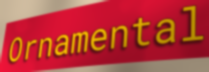
Ornamental